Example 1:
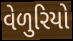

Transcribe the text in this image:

વેળુરિયો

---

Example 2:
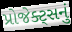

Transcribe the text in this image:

પ્રોજેક્ટ્સનું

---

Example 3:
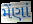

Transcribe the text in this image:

મેંણાં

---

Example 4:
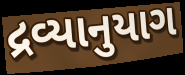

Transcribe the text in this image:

દ્રવ્યાનુયાગ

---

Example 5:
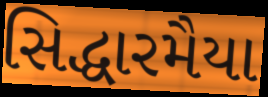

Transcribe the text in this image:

સિદ્ધારમૈયા